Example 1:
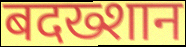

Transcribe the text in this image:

बदख्शान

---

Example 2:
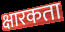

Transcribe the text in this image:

क्षारकता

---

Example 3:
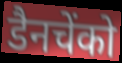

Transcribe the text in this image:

डैनचेंको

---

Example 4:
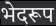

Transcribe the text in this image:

भेदरूप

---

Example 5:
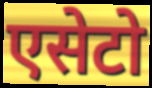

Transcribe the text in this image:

एसेटो